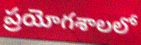
ప్రయోగశాలలో